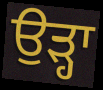
ਉੜ੍ਹਾ